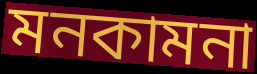
মনকামনা